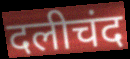
दलीचंद